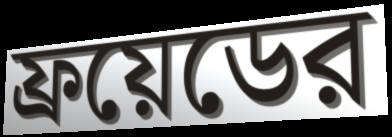
ফ্রয়েডের